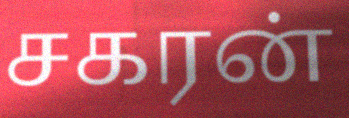
சகரன்